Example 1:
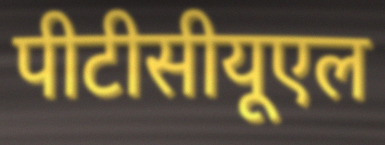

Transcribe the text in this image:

पीटीसीयूएल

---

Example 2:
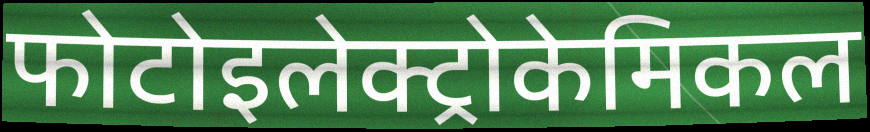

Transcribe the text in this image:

फोटोइलेक्ट्रोकेमिकल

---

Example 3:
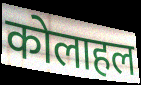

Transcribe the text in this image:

कोलाहल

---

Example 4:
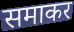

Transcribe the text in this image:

समाकर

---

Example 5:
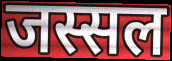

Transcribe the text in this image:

जस्सल